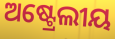
ଅଷ୍ଟ୍ରେଲୀୟ